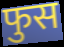
फुस